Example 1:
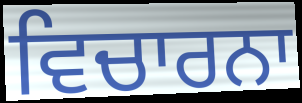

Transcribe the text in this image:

ਵਿਚਾਰਨਾ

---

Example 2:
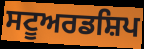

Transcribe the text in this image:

ਸਟੂਅਰਡਸ਼ਿਪ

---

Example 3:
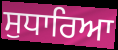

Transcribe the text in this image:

ਸੁਧਾਰਿਆ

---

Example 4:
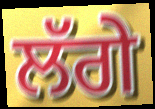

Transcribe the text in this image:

ਲੱਗੇ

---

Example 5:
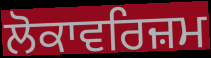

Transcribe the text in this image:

ਲੋਕਾਵਰਿਜ਼ਮ